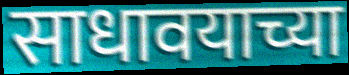
साधावयाच्या